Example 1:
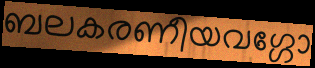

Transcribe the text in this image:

ബലകരണീയവഗ്ഗോ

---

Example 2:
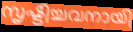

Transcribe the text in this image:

സൃഷ്ടിച്ചവനായി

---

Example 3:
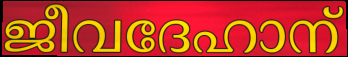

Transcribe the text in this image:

ജീവദേഹാന്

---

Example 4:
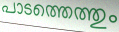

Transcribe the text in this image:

പാടത്തെത്തും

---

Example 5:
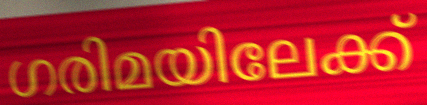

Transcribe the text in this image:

ഗരിമയിലേക്ക്